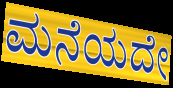
ಮನೆಯದೇ